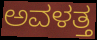
ಅವಳತ್ತ